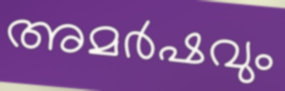
അമർഷവും